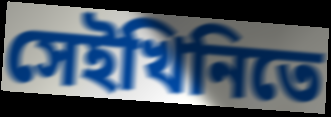
সেইখিনিতে